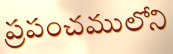
ప్రపంచములోని